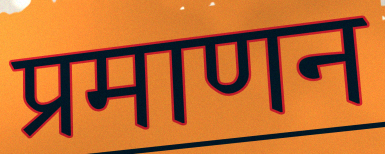
प्रमाणन